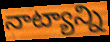
నాట్యాన్ని